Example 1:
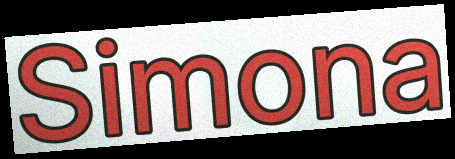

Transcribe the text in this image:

Simona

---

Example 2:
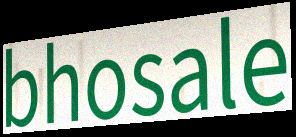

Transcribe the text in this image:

bhosale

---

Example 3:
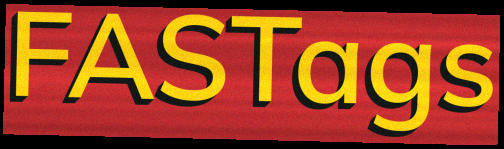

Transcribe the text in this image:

FASTags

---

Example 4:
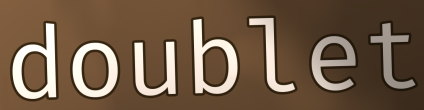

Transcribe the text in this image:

doublet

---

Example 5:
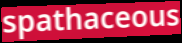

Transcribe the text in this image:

spathaceous